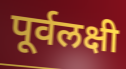
पूर्वलक्षी